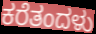
ಕರೆತಂದಳು